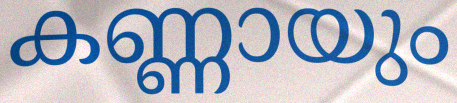
കണ്ണായും